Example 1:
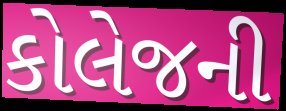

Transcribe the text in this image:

કોલેજની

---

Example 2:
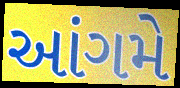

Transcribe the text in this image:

આંગમે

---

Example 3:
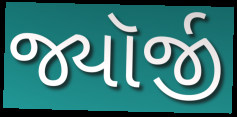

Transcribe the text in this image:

જ્યૉર્જી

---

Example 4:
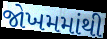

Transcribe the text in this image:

જોખમમાંથી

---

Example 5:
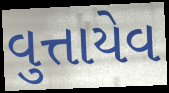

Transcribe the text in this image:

વુત્તાયેવ